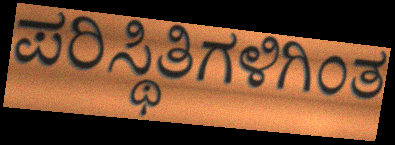
ಪರಿಸ್ಥಿತಿಗಳಿಗಿಂತ